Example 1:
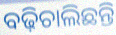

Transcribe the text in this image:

ବଢ଼ିଚାଲିଛନ୍ତି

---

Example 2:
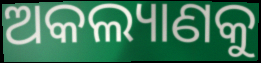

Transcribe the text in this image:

ଅକଲ୍ୟାଣକୁ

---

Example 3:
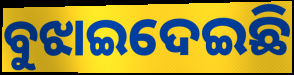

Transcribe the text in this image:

ବୁଝାଇଦେଇଛି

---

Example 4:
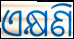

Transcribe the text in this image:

ଏକ୍ଷଣି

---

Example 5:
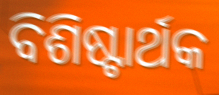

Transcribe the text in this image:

ବିଶିଷ୍ଟାର୍ଥକ